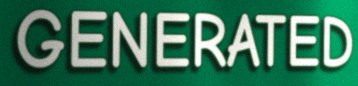
GENERATED